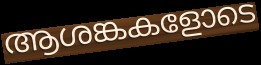
ആശങ്കകളോടെ